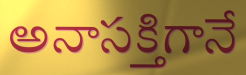
అనాసక్తిగానే